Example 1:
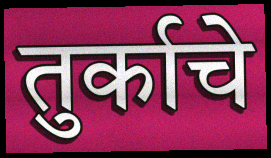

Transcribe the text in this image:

तुर्काचे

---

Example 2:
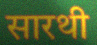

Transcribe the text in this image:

सारथी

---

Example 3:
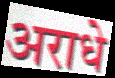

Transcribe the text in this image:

अराधे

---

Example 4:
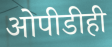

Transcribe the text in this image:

ओपीडीही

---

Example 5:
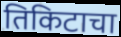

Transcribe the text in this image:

तिकिटाचा